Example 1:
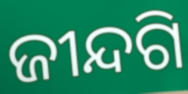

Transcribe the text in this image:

ଜୀନ୍ଦଗି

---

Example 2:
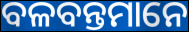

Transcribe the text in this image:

ବଳବନ୍ତମାନେ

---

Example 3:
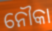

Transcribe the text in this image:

ନୌକା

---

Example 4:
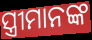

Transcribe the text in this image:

ସ୍ତ୍ରୀମାନଙ୍କ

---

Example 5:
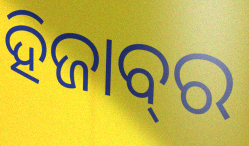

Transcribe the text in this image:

ହିଜାବ୍‌ର